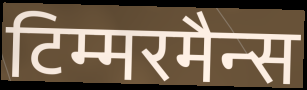
टिम्मरमैन्स